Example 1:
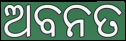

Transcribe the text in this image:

ଅବନତ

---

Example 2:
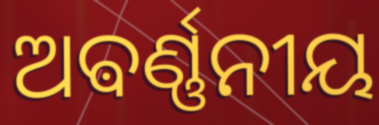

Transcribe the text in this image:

ଅଵର୍ଣ୍ଣନୀୟ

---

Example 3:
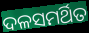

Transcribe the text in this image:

ଦଳସମର୍ଥିତ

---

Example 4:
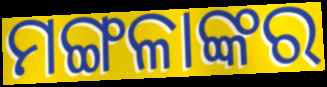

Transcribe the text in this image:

ମଙ୍ଗଳାଙ୍କର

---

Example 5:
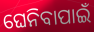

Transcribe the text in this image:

ଘେନିବାପାଇଁ